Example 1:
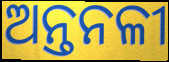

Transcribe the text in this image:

ଅନ୍ତନଳୀ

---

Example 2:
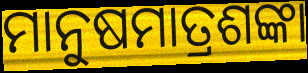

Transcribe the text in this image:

ମାନୁଷମାତ୍ରଶଙ୍କା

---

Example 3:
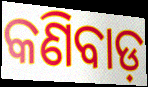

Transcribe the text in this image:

କଣିବାଡ଼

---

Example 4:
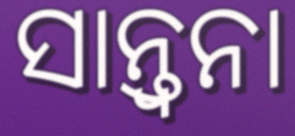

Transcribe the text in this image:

ସାନ୍ତ୍ଵନା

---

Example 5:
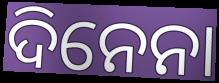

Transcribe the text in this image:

ଦିନେନା